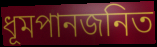
ধূমপানজনিত